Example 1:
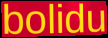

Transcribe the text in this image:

bolidu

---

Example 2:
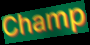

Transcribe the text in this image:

Champ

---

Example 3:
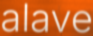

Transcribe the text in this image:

alave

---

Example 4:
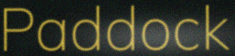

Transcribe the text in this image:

Paddock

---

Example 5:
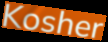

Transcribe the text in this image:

Kosher